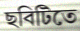
ছবিটিতে